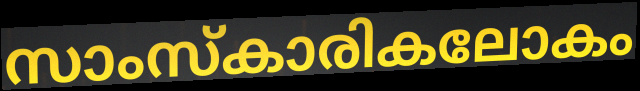
സാംസ്കാരികലോകം